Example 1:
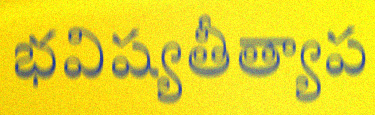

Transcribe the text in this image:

భవిష్యతీత్యాప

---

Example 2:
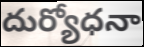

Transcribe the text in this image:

దుర్యోధనా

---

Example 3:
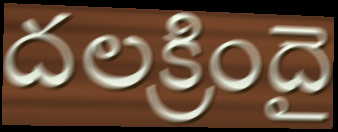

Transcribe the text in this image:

దలక్రిందై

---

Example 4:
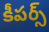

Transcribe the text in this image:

కీపర్స్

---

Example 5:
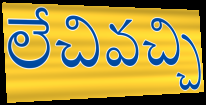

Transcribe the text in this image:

లేచివచ్చి